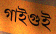
গাইগুই